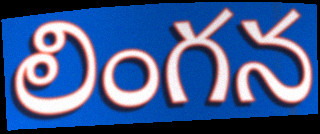
లింగన